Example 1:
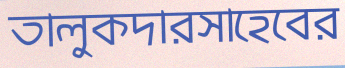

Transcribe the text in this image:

তালুকদারসাহেবের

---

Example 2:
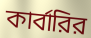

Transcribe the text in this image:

কার্বারির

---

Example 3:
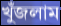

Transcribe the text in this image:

খুঁজলাম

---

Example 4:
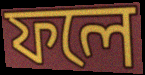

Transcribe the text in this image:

ফলে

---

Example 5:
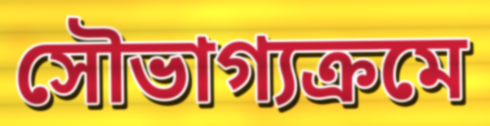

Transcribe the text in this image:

সৌভাগ্যক্রমে